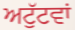
ਅਟੁੱਟਵਾਂ